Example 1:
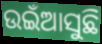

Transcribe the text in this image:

ଉଇଁଆସୁଛି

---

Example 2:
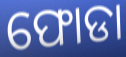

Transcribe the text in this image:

ଫୋଡା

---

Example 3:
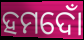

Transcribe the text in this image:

ହମଦୋଁ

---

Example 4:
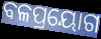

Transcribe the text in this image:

ବଳପ୍ରୟୋଗ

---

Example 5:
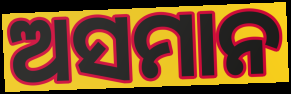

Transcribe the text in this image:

ଅସମାନ